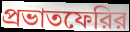
প্রভাতফেরির